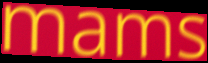
mams